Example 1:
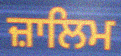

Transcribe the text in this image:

ਜ਼ਾਲਿਮ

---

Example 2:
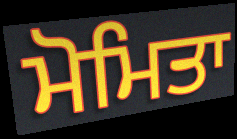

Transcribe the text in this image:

ਮੋਮਿਤਾ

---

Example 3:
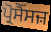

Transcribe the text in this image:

ਪ੍ਰੋਸੈੱਸਜ਼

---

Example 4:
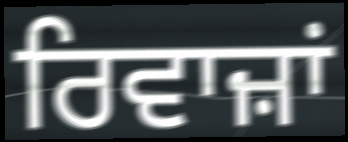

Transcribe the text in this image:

ਰਿਵਾਜ਼ਾਂ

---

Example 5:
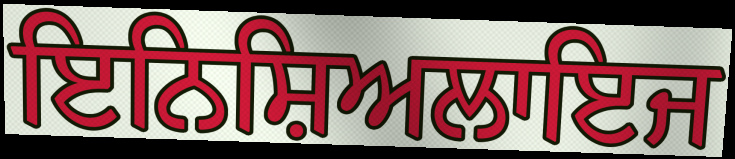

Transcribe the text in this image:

ਇਨਿਸ਼ਿਅਲਾਇਜ